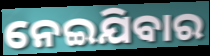
ନେଇଯିବାର